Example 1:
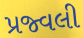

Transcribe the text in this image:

પ્રજ્વલી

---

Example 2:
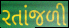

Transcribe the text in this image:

રતાંજળી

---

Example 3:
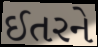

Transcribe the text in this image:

ઈતરને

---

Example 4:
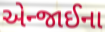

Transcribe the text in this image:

એન્જાઈના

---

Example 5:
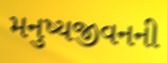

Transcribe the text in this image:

મનુષ્યજીવનની